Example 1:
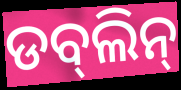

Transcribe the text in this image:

ଡବ୍‌ଲିନ୍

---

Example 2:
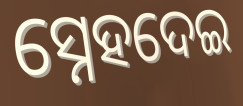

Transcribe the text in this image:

ସ୍ନେହଦେଇ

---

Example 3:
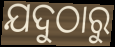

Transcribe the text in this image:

ଯଦୁଠାରୁ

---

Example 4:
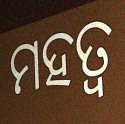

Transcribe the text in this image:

ମହତ୍ବ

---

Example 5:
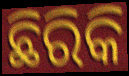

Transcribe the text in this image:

ଛିରିକି